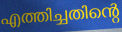
എത്തിച്ചതിന്റെ